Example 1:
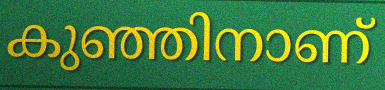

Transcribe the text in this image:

കുഞ്ഞിനാണ്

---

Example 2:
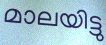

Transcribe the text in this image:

മാലയിട്ടു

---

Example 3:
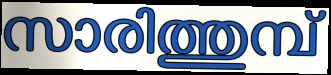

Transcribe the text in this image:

സാരിത്തുമ്പ്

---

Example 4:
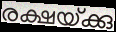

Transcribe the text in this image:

രക്ഷയ്‌ക്കു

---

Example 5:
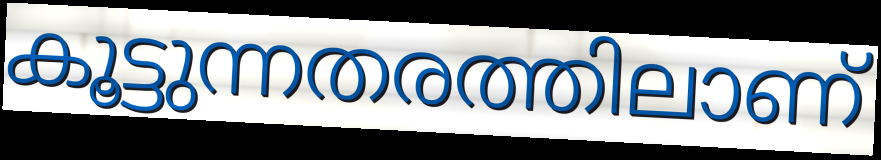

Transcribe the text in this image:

കൂട്ടുന്നതരത്തിലാണ്